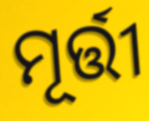
ମୂର୍ତ୍ତୀ